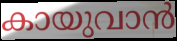
കായുവാൻ